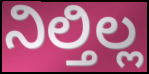
ನಿಲ್ತಿಲ್ಲ